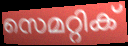
സെമറ്റിക്